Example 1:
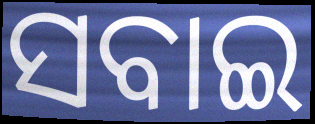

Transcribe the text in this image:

ସବାଇ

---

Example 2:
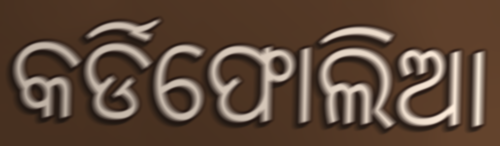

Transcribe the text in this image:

କର୍ଡିଫୋଲିଆ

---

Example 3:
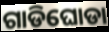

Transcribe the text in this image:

ଗାଡିଘୋଡା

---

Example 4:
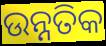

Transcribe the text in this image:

ଉନ୍ନତିକ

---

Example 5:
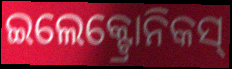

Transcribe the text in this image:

ଇଲେକ୍ଟ୍ରୋନିକସ୍